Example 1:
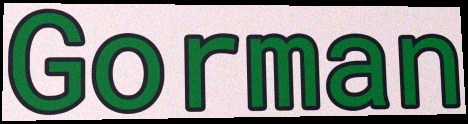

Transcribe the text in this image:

Gorman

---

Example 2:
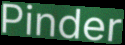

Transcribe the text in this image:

Pinder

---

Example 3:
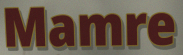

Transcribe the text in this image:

Mamre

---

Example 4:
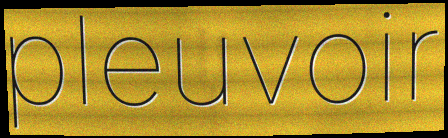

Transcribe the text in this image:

pleuvoir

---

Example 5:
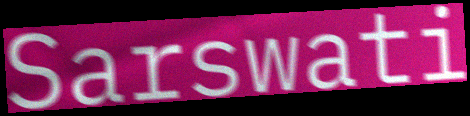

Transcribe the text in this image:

Sarswati